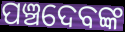
ପଞ୍ଚଦେବଙ୍କ